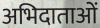
अभिदाताओं